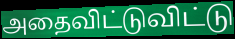
அதைவிட்டுவிட்டு